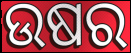
ଉଷର